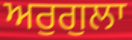
ਅਰੁਗੁਲਾ